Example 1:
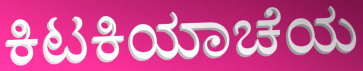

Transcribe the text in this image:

ಕಿಟಕಿಯಾಚೆಯ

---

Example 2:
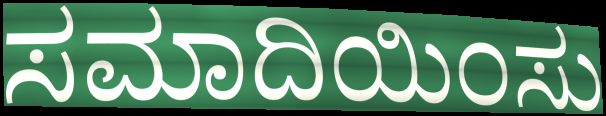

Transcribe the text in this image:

ಸಮಾದಿಯಿಂಸು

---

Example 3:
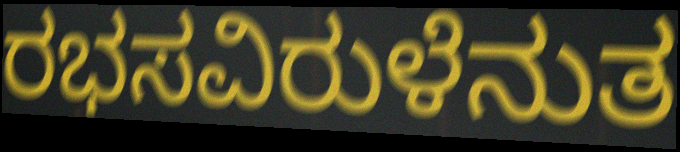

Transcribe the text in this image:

ರಭಸವಿರುಳೆನುತ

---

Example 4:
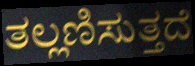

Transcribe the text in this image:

ತಲ್ಲಣಿಸುತ್ತದೆ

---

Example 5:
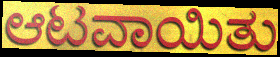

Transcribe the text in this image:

ಆಟವಾಯಿತು